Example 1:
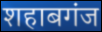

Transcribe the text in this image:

शहाबगंज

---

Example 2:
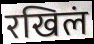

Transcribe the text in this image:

रखिलं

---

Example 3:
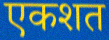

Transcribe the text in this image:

एकशत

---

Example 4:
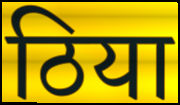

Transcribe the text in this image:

ठिया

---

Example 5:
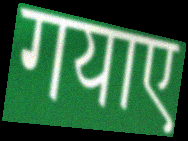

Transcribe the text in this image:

गयाए